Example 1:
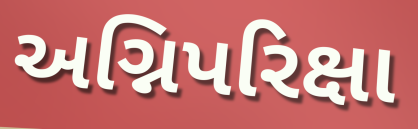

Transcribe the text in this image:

અગ્નિપરિક્ષા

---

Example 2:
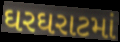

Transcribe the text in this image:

ઘરઘરાટમાં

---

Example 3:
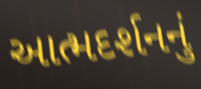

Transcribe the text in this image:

આત્મદર્શનનું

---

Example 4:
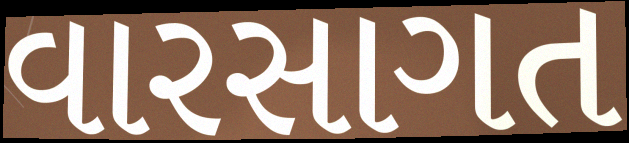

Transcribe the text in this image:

વારસાગત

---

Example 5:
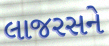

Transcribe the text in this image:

લાજરસને